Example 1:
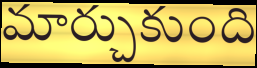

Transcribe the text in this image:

మార్చుకుంది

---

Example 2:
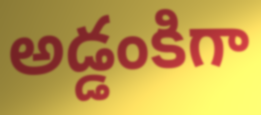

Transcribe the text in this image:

అడ్డంకిగా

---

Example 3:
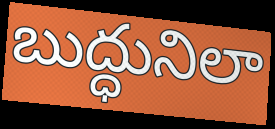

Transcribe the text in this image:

బుద్ధునిలా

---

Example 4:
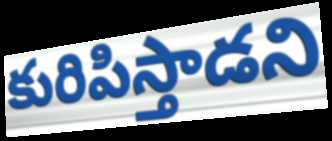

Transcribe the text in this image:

కురిపిస్తాడని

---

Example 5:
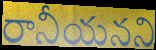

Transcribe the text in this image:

రానీయనని